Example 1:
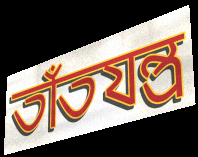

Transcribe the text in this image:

তাঁতযন্ত্র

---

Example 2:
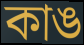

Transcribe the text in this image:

কাঙ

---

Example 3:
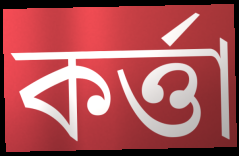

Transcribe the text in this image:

কর্ত্তা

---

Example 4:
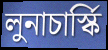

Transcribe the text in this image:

লুনাচার্স্কি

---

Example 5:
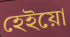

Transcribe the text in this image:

হেইয়ো